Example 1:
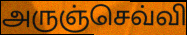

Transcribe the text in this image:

அருஞ்செவ்வி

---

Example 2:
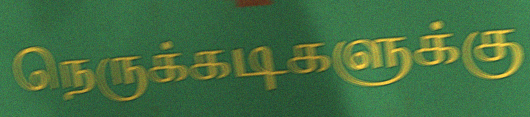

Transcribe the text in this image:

நெருக்கடிகளுக்கு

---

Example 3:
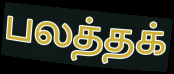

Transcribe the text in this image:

பலத்தக்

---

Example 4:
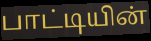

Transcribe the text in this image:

பாட்டியின்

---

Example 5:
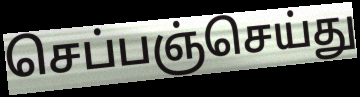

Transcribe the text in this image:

செப்பஞ்செய்து